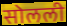
सोलली